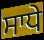
ਸਾਧੇ